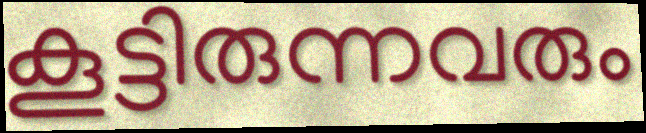
കൂട്ടിരുന്നവരും